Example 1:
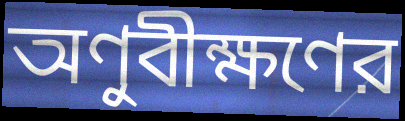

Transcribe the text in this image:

অণুবীক্ষণের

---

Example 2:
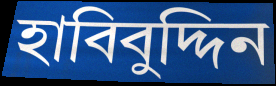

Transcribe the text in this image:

হাবিবুদ্দিন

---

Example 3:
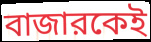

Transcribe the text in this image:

বাজারকেই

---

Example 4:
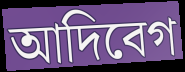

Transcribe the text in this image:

আদিবেগ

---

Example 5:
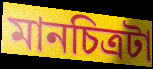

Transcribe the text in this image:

মানচিত্রটা